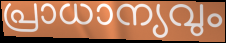
പ്രാധാന്യവും